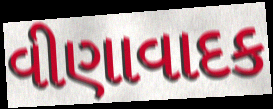
વીણાવાદક